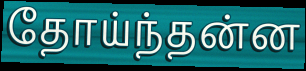
தோய்ந்தன்ன